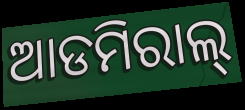
ଆଡମିରାଲ୍